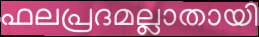
ഫലപ്രദമല്ലാതായി